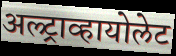
अल्ट्राव्हायोलेट